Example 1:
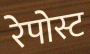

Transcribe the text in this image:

रेपोस्ट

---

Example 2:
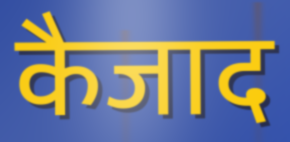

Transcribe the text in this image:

कैजाद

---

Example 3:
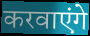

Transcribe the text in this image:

करवाएंगे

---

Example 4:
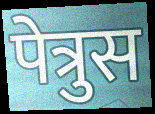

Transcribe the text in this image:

पेत्रुस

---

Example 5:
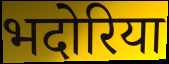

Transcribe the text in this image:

भदोरिया